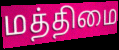
மத்திமை